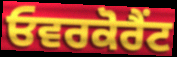
ਓਵਰਕੋਰੈਂਟ